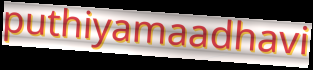
puthiyamaadhavi